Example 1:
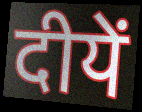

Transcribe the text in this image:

दीयें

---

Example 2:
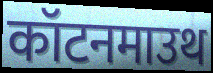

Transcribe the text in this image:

कॉटनमाउथ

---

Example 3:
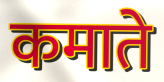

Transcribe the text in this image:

कमाते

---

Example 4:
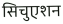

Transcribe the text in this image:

सिचुएशन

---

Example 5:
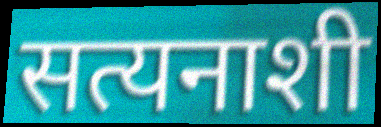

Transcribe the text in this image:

सत्यनाशी